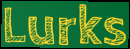
Lurks